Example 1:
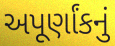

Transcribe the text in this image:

અપૂર્ણાંકનું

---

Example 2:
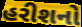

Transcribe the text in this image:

હરીશનો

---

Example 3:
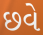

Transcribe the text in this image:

છવે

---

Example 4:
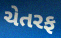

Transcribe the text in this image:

ચેતરફ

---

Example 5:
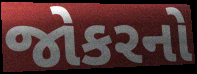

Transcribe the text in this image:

જોકરનો